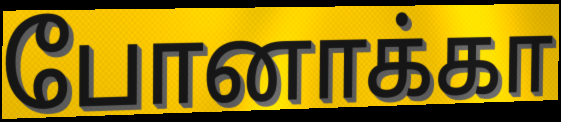
போனாக்கா